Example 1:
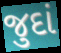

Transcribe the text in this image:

જુદાં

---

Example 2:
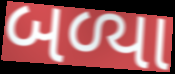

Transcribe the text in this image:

બળ્યા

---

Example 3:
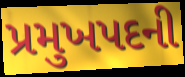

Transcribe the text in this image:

પ્રમુખપદની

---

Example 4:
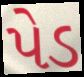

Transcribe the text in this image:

પેડ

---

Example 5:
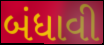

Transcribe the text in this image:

બંધાવી